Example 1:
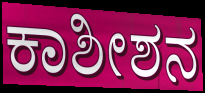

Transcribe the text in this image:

ಕಾಶೀಶನ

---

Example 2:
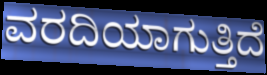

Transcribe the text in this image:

ವರದಿಯಾಗುತ್ತಿದೆ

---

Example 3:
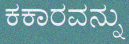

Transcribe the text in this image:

ಕಕಾರವನ್ನು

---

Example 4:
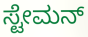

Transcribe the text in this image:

ಸ್ಟೇಮನ್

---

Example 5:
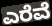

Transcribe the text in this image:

ಎರೆವೆ